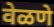
वेळणे